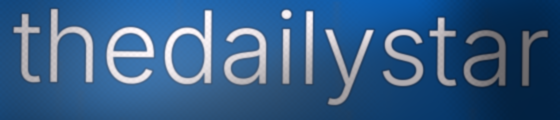
thedailystar